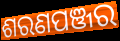
ଶରଣପଞ୍ଜର